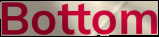
Bottom